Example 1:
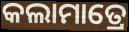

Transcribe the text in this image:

କଲାମାତ୍ରେ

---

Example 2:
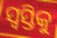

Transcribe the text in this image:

ସ୍ୱସ୍ତିକୁ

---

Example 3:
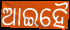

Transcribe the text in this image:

ଆଇହୈ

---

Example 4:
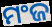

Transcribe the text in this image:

ମଂଜ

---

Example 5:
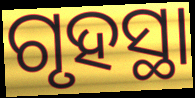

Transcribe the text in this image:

ଗୃହସ୍ଥା